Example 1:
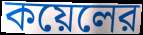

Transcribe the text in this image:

কয়েলের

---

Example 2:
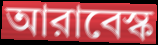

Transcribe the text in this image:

আরাবেস্ক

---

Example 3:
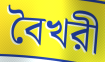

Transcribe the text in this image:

বৈখরী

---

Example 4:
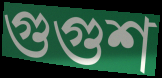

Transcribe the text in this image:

গুগুশ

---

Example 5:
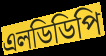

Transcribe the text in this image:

এলডিডিপি